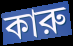
কারু